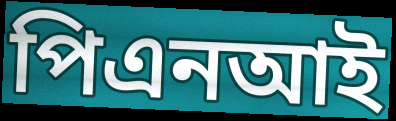
পিএনআই